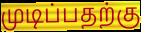
முடிப்பதற்கு